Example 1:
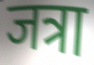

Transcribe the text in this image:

जत्रा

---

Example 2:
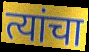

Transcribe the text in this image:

त्यांचा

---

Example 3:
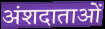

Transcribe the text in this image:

अंशदाताओं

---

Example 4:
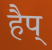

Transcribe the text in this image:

हैप्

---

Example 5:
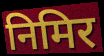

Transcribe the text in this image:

निमिर